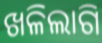
ଖଳିଲାଗି